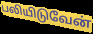
பலியிடுவேன்